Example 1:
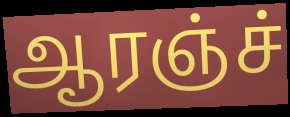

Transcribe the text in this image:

ஆரஞ்ச்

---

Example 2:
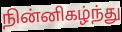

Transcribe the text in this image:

நின்னிகழ்ந்து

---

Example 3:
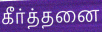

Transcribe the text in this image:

கீர்த்தனை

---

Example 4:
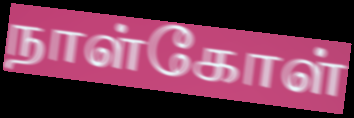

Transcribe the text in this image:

நாள்கோள்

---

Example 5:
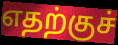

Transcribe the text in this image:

எதற்குச்